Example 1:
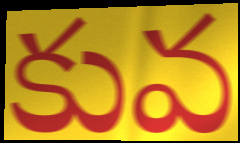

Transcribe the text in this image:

కువ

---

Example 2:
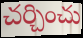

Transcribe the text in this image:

చర్చించు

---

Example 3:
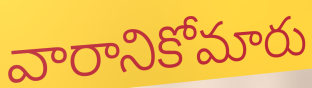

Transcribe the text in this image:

వారానికోమారు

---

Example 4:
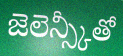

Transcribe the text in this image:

జెలెన్స్కీతో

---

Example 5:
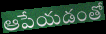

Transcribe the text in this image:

ఆపేయడంతో